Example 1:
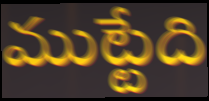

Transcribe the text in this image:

ముట్టేది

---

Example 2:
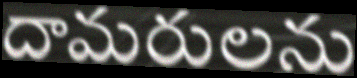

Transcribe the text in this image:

దామరులను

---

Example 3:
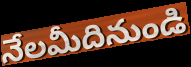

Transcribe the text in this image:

నేలమీదినుండి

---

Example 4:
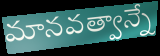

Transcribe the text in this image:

మానవత్వాన్నే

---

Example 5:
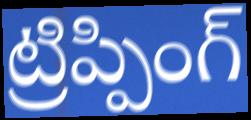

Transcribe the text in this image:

ట్రిప్పింగ్